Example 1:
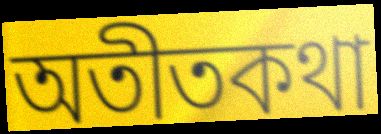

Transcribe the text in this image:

অতীতকথা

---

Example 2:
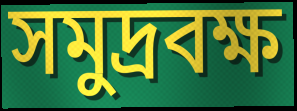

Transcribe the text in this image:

সমুদ্রবক্ষ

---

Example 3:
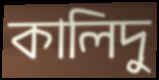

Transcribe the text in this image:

কালিদু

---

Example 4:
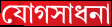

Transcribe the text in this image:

যোগসাধনা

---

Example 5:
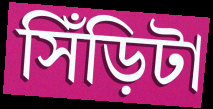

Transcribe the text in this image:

সিঁড়িটা